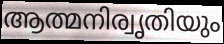
ആത്മനിര്വൃതിയും